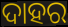
ଦାହର